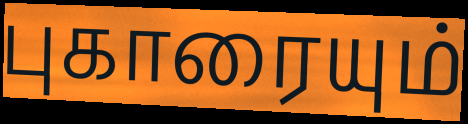
புகாரையும்